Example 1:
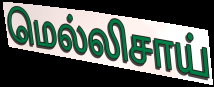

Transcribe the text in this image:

மெல்லிசாய்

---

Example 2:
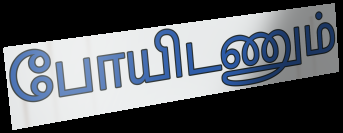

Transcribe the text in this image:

போயிடணும்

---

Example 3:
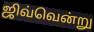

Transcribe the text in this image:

ஜிவ்வென்று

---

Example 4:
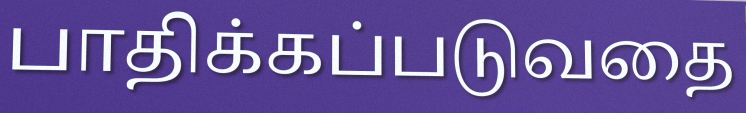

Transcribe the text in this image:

பாதிக்கப்படுவதை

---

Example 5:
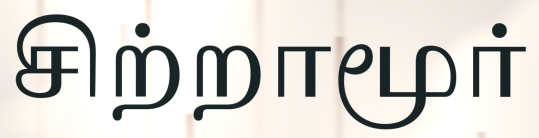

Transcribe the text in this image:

சிற்றாமூர்